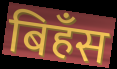
बिहँस